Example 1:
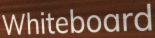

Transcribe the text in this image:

Whiteboard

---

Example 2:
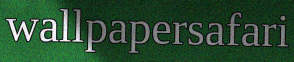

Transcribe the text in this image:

wallpapersafari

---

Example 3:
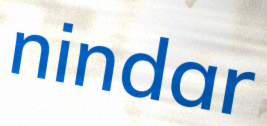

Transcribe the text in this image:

nindar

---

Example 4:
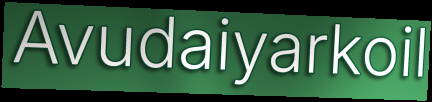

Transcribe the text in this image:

Avudaiyarkoil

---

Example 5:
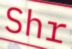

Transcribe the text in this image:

Shr